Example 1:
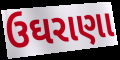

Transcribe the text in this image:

ઉઘરાણા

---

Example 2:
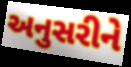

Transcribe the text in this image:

અનુસરીને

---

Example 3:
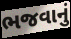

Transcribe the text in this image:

ભજવાનું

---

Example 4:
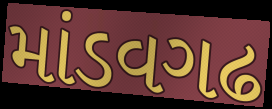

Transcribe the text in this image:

માંડવગઢ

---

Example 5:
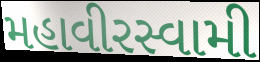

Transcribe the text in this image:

મહાવીરસ્વામી